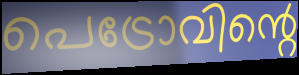
പെട്രോവിന്റെ